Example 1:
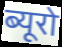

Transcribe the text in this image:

ब्यूरो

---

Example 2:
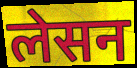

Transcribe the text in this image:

लेसन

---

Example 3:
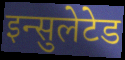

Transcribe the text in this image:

इन्सुलेटेड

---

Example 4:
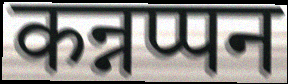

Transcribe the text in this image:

कन्नप्पन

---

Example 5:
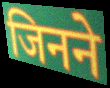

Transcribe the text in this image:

जिनने